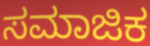
ಸಮಾಜಿಕ